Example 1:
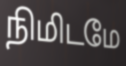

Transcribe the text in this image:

நிமிடமே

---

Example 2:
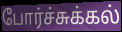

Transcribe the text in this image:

போர்ச்சுக்கல்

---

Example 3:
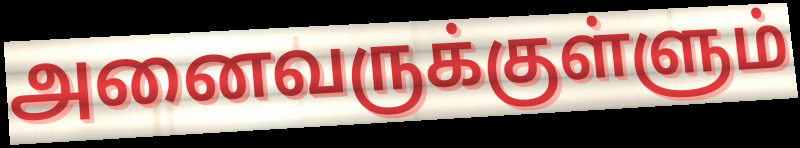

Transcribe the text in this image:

அனைவருக்குள்ளும்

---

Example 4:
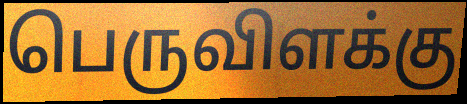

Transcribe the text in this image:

பெருவிளக்கு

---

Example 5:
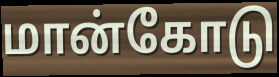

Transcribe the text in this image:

மான்கோடு